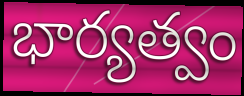
భార్యత్వం